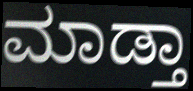
ಮಾಡ್ತಾ